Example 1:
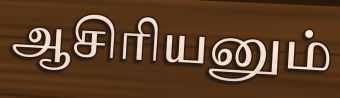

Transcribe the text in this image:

ஆசிரியனும்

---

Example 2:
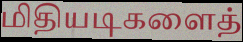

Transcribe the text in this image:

மிதியடிகளைத்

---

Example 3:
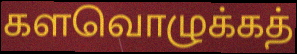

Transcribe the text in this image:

களவொழுக்கத்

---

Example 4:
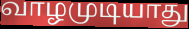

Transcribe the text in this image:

வாழமுடியாது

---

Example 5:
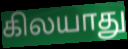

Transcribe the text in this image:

கிலயாது